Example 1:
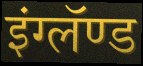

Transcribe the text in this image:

इंग्लॅण्ड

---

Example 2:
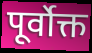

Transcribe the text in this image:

पूर्वोक्त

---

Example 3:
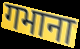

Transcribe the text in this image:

गभाना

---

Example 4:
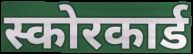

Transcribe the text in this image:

स्कोरकार्ड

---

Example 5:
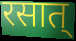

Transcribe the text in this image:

रसात्